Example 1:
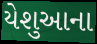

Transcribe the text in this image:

યેશુઆના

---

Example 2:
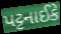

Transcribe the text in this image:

પટ્ટનાઈકે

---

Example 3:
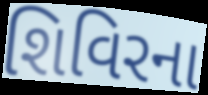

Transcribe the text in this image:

શિવિરના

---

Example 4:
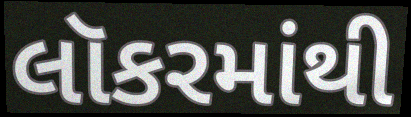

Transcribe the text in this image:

લૉકરમાંથી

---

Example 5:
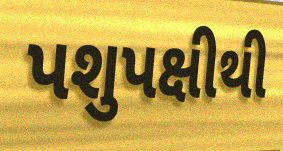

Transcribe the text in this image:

પશુપક્ષીથી